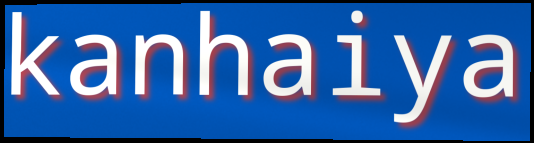
kanhaiya